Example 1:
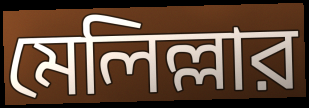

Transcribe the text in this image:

মেলিল্লার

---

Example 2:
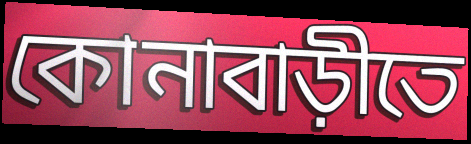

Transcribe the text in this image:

কোনাবাড়ীতে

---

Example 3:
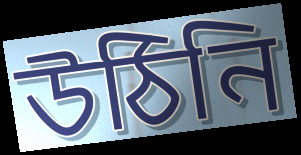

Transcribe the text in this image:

উঠিনি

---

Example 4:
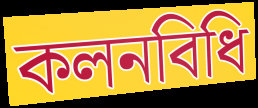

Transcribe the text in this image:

কলনবিধি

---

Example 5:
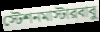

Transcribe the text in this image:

স্টেশনমাস্টারবাবু